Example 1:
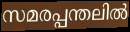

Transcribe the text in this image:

സമരപ്പന്തലിൽ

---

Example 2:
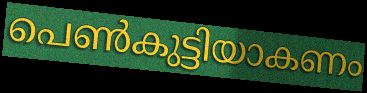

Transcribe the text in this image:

പെൺകുട്ടിയാകണം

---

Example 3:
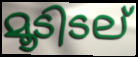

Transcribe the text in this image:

മൂടിടല്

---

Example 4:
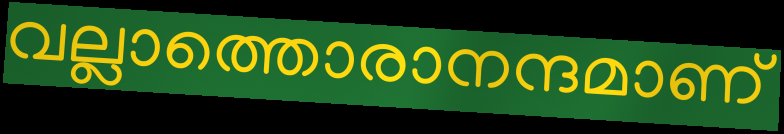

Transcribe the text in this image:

വല്ലാത്തൊരാനന്ദമാണ്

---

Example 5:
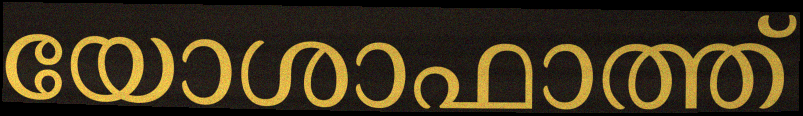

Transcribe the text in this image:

യോശാഫാത്ത്